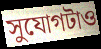
সুযোগটাও